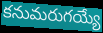
కనుమరుగయ్యే